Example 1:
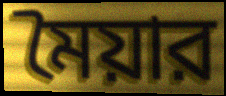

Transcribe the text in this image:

মৈয়ার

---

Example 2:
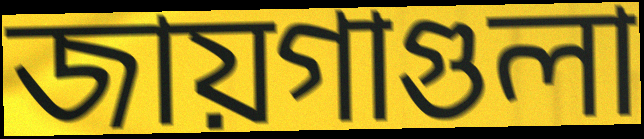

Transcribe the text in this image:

জায়গাগুলা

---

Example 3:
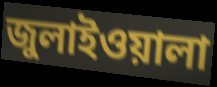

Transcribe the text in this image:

জুলাইওয়ালা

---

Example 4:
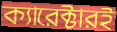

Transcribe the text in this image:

ক্যারেক্টারই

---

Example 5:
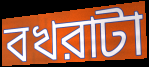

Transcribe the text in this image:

বখরাটা